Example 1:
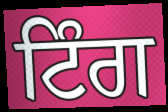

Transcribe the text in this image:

ਟਿੰਗ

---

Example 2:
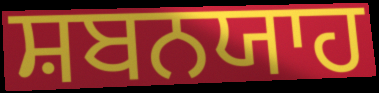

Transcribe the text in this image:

ਸ਼ਬਨਯਾਹ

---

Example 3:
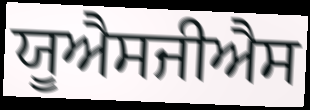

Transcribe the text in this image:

ਯੂਐਸਜੀਐਸ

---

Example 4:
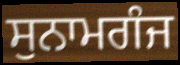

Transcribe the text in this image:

ਸੁਨਾਮਗੰਜ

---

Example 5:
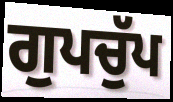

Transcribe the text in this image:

ਗੁਪਚੁੱਪ